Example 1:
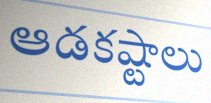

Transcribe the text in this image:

ఆడకష్టాలు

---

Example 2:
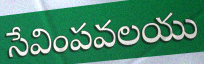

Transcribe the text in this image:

సేవింపవలయు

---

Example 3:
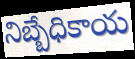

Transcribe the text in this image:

నిబ్బేధికాయ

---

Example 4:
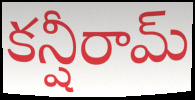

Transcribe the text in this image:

కన్షీరామ్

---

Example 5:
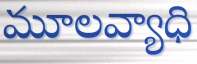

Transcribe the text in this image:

మూలవ్యాధి